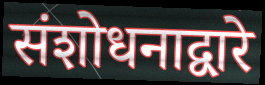
संशोधनाद्वारे